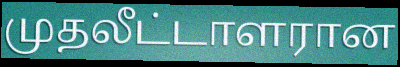
முதலீட்டாளரான